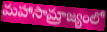
మహాసామ్రాజ్యంలో